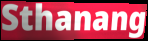
Sthanang